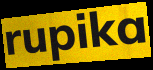
rupika